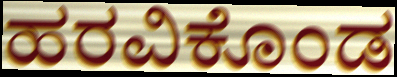
ಹರವಿಕೊಂಡ